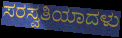
ಸರಸ್ವತಿಯಾದಳು